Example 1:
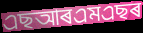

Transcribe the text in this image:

এছআৰএমএছৰ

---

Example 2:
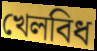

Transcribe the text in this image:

খেলবিধ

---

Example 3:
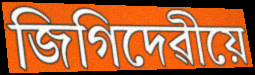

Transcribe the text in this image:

জিগিদেৱীয়ে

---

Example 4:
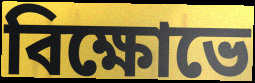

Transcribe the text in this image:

বিক্ষোভে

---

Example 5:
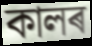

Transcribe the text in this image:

কালৰ